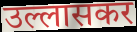
उल्लासकर